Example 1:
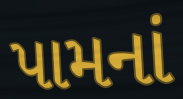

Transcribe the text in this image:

પામનાં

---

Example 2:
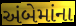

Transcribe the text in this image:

અંબેમાંના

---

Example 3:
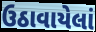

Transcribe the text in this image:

ઉઠાવાયેલાં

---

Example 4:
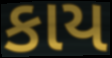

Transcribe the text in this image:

કાય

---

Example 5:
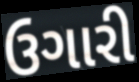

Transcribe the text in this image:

ઉગારી